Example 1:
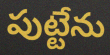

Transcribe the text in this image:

పుట్టేను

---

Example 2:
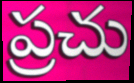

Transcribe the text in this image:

ప్రచు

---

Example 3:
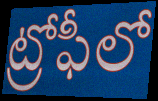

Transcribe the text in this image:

ట్రోఫీలో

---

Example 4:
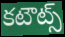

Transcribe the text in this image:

కటౌట్స్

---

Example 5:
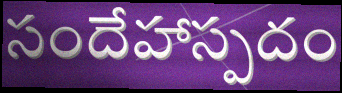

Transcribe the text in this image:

సందేహాస్పదం